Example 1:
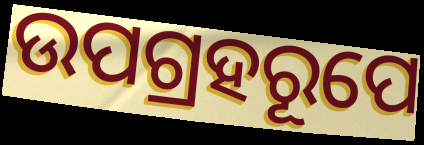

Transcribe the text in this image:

ଉପଗ୍ରହରୂପେ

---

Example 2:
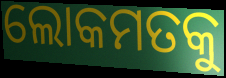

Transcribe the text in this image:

ଲୋକମତକୁ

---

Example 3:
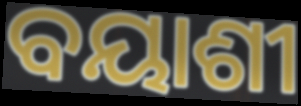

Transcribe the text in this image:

ବୟାଶୀ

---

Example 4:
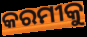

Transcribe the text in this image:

କରମୀକୁ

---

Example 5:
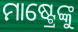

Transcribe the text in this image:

ମାଷ୍ଟ୍ରେଙ୍କୁ